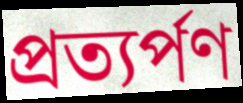
প্ৰত্যৰ্পণ